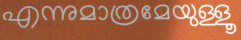
എന്നുമാത്രമേയുള്ളൂ